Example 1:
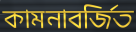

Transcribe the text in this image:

কামনাবর্জিত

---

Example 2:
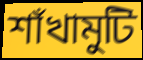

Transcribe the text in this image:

শাঁখামুটি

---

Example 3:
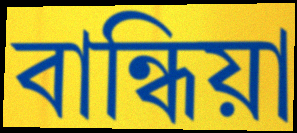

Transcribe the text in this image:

বান্ধিয়া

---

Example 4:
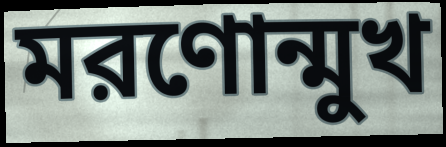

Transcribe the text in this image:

মরণোন্মুখ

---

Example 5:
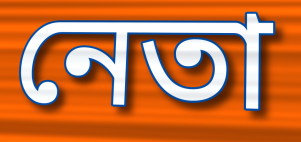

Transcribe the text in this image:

নেতা